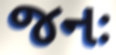
જનઃ